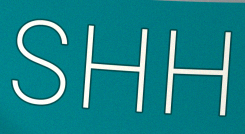
SHH